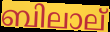
ബിലാല്